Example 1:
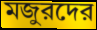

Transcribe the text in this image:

মজুরদের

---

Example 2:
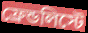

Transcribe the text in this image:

ফ্রেন্ডলিস্টে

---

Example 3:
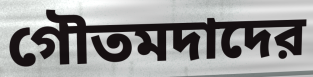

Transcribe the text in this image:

গৌতমদাদের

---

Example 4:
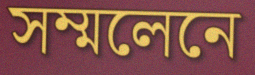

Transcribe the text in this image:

সম্মলেনে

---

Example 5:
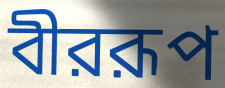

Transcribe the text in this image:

বীররূপ